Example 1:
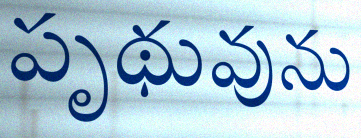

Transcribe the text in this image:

పృథువును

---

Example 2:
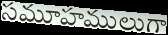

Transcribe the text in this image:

సమూహములుగా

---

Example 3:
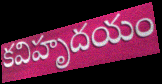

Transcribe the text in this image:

కవిహృదయం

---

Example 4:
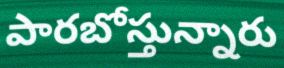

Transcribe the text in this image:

పారబోస్తున్నారు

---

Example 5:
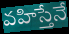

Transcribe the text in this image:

వహిస్తేనే